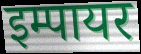
इम्पायर